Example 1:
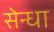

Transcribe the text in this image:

सेन्धा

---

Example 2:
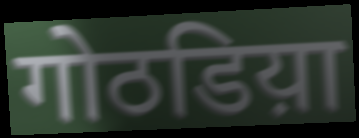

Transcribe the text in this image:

गोठडिय़ा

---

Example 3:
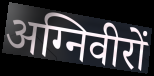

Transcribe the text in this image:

अग्निवीरों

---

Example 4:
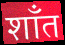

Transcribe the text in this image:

शाँत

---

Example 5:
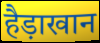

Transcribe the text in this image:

हैड़ाखान